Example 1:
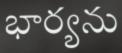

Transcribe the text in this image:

భార్యను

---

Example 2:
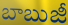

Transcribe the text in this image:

బాబుజీ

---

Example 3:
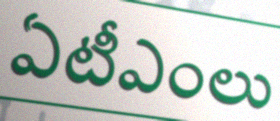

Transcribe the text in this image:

ఏటీఎంలు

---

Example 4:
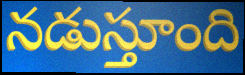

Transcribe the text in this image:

నడుస్తూంది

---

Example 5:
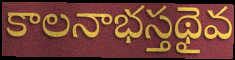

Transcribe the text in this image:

కాలనాభస్తథైవ